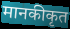
मानकीकृत